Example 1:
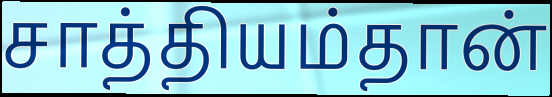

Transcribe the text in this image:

சாத்தியம்தான்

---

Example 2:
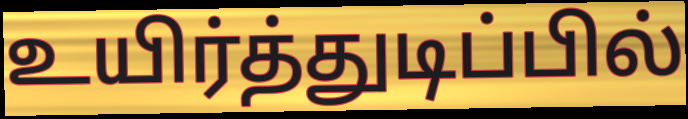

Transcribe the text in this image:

உயிர்த்துடிப்பில்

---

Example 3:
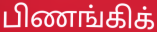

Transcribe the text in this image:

பிணங்கிக்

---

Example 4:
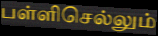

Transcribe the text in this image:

பள்ளிசெல்லும்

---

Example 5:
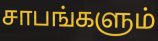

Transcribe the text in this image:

சாபங்களும்